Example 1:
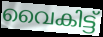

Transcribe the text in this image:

വൈകിട്ട്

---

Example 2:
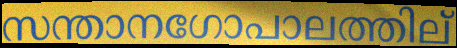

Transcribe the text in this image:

സന്താനഗോപാലത്തില്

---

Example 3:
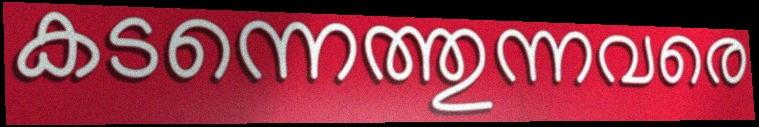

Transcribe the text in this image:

കടന്നെത്തുന്നവരെ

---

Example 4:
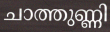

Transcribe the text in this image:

ചാത്തുണ്ണി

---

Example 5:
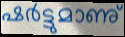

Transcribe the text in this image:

ഷർട്ടുമാണു്